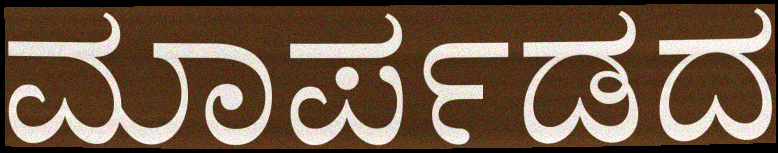
ಮಾರ್ಪಡದ